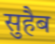
सुहैब